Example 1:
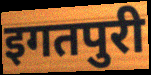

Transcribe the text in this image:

इगतपुरी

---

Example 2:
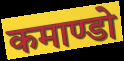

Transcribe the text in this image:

कमाण्डो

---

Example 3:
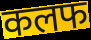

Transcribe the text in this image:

कलफ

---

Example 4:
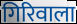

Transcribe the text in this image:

गिरिवाला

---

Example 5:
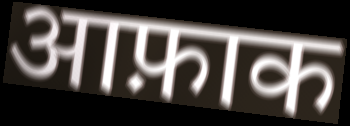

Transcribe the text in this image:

आफ़ाक